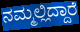
ನಮ್ಮಲ್ಲಿದ್ದಾರೆ